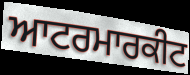
ਆਟਰਮਾਰਕੀਟ